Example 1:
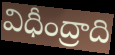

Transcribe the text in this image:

విధీంద్రాది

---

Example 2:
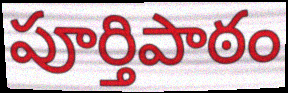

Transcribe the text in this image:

పూర్తిపాఠం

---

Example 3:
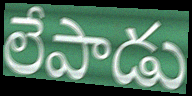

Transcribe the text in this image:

లేపాడు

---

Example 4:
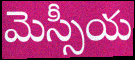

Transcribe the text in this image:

మెస్సీయ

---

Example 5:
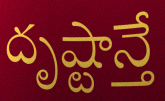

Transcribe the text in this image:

దృష్టాన్తే